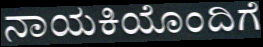
ನಾಯಕಿಯೊಂದಿಗೆ